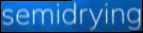
semidrying